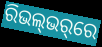
ରିଭଲ୍‌ଭର୍‌ରେ